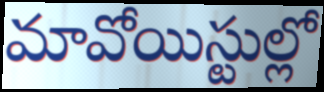
మావోయిస్టుల్లో